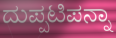
ದುಪ್ಪಟಿಪನ್ನಾ